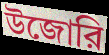
উজোরি